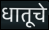
धातूचे